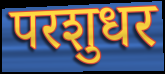
परशुधर